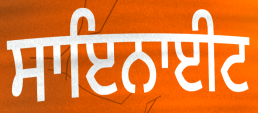
ਸਾਇਨਾਈਟ